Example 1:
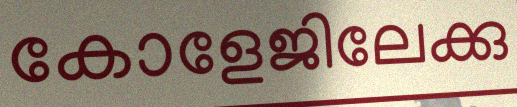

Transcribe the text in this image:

കോളേജിലേക്കു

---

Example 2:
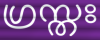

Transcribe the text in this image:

ഗ്രസ്തഃ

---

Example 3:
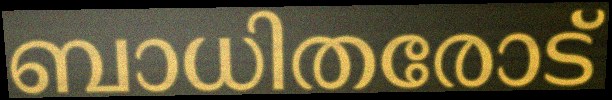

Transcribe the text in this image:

ബാധിതരോട്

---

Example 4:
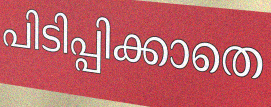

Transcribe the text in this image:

പിടിപ്പിക്കാതെ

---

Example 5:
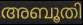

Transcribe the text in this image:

അബൂതി